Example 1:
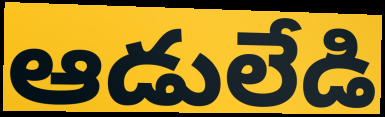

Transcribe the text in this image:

ఆడులేడి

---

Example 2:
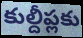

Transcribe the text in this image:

కుల్దీప్లకు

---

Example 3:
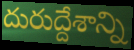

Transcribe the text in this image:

దురుద్దేశాన్ని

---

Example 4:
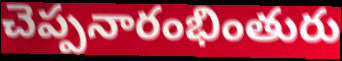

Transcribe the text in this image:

చెప్పనారంభింతురు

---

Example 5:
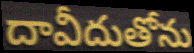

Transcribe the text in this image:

దావీదుతోను